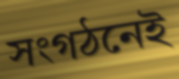
সংগঠনেই